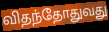
விதந்தோதுவது